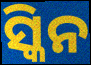
ସ୍କିନ